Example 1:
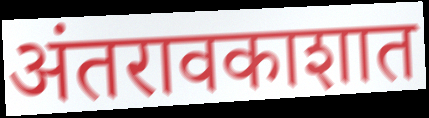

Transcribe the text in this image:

अंतरावकाशात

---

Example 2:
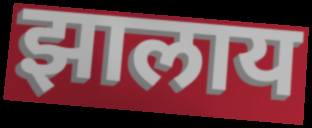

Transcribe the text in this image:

झालाय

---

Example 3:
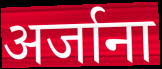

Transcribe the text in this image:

अर्जाना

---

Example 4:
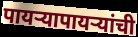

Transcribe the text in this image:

पायऱ्यापायऱ्यांची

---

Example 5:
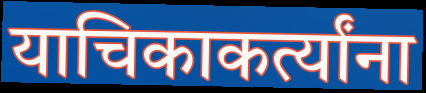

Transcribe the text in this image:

याचिकाकर्त्यांना